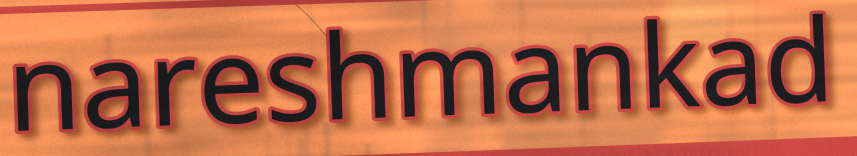
nareshmankad